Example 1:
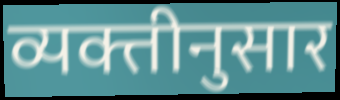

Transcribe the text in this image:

व्यक्तीनुसार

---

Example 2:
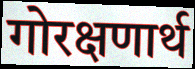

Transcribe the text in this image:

गोरक्षणार्थ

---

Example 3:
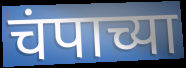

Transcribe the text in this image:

चंपाच्या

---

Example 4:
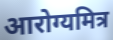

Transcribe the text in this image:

आरोग्यमित्र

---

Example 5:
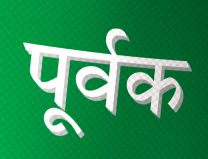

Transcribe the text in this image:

पूर्वक